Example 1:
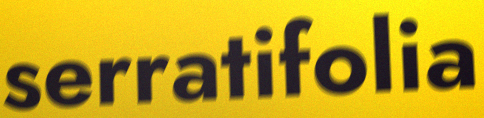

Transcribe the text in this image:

serratifolia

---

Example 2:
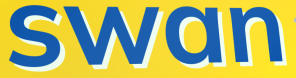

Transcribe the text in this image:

swan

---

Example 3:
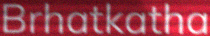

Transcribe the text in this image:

Brhatkatha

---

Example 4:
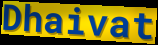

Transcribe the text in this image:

Dhaivat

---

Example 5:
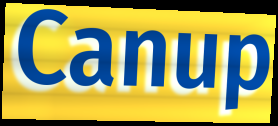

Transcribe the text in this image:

Canup